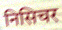
निसिचर